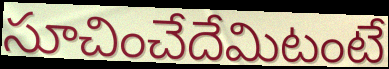
సూచించేదేమిటంటే